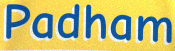
Padham